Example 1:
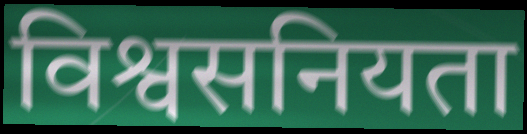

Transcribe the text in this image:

विश्वसनियता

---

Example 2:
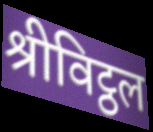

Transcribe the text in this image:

श्रीविट्ठल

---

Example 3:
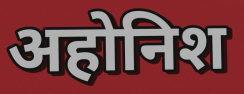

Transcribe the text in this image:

अहोनिश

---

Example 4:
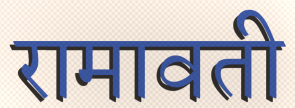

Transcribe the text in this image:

रामावती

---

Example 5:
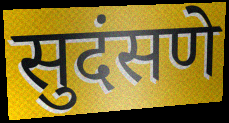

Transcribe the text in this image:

सुदंसणे